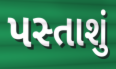
પસ્તાશું